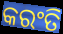
କରଂତି